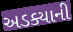
અડક્યાની